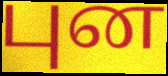
புன